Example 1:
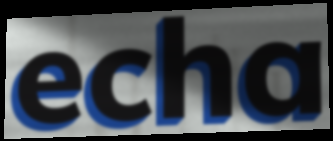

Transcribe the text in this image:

echa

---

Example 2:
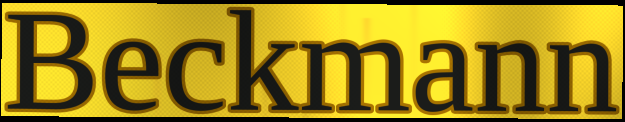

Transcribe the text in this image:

Beckmann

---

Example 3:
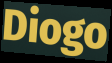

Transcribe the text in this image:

Diogo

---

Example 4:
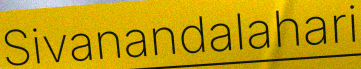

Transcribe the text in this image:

Sivanandalahari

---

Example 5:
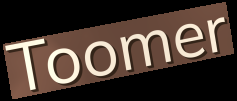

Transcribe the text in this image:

Toomer